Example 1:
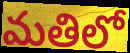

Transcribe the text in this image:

మతిలో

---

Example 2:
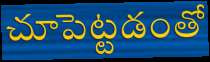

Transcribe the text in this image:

చూపెట్టడంతో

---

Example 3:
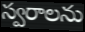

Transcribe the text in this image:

స్వరాలను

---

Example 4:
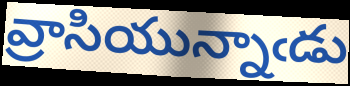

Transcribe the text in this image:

వ్రాసియున్నాఁడు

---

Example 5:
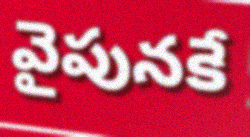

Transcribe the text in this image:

వైపునకే